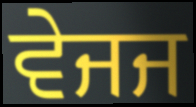
ਵੇਜਜ